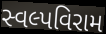
સ્વલ્પવિરામ